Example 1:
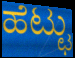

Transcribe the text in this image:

ಹೆಟ್ಟು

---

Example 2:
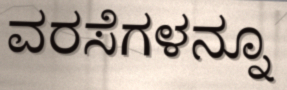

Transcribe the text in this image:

ವರಸೆಗಳನ್ನೂ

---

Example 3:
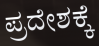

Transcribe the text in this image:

ಪ್ರದೇಶಕ್ಕೆ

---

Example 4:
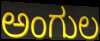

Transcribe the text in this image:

ಅಂಗುಲ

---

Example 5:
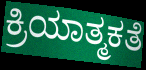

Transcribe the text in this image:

ಕ್ರಿಯಾತ್ಮಕತೆ